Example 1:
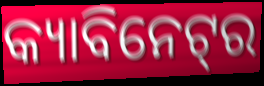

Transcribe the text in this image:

କ୍ୟାବିନେଟ୍‌ର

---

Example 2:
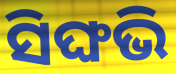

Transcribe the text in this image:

ସିଙ୍ଘଭି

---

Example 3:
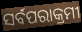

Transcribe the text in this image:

ସର୍ବପରାକ୍ରମୀ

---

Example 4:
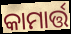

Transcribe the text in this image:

କାମାର୍ତ୍ତ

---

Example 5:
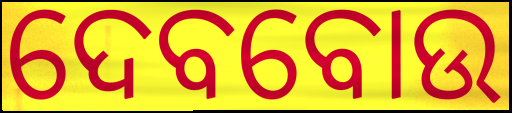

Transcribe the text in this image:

ଦେବବୋଉ